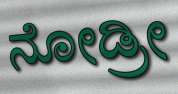
ನೋಡ್ರೀ